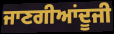
ਜਾਣਗੀਆਂਦੂਜੀ